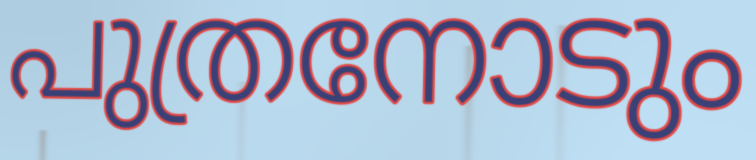
പുത്രനോടും